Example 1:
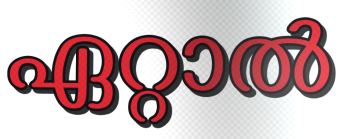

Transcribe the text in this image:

ഏറ്റാൽ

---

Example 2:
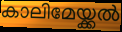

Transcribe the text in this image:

കാലിമേയ്ക്കൽ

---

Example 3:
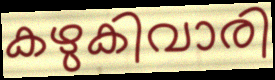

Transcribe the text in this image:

കഴുകിവാരി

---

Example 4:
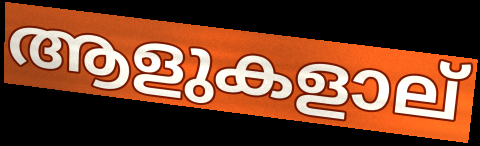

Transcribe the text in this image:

ആളുകളാല്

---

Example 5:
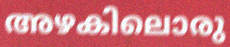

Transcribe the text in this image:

അഴകിലൊരു